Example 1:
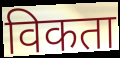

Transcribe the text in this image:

विकता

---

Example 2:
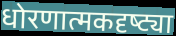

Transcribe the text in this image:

धोरणात्मकदृष्ट्या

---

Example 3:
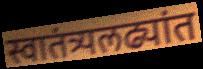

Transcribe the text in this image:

स्वातंत्र्यलढ्यांत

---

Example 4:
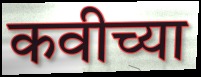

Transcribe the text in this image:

कवीच्या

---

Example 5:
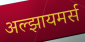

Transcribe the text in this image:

अल्झायमर्स